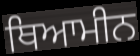
ਥਿਆਮੀਨ